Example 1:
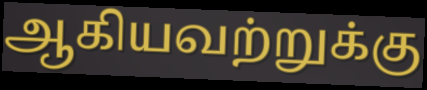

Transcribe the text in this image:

ஆகியவற்றுக்கு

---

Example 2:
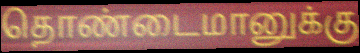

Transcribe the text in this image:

தொண்டைமானுக்கு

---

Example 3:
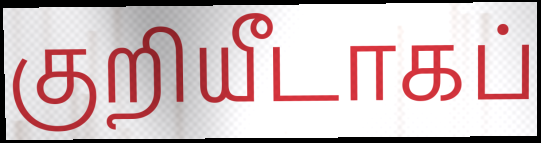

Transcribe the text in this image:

குறியீடாகப்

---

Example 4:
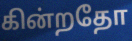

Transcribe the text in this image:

கின்றதோ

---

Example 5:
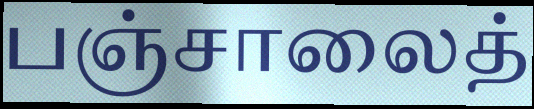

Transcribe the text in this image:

பஞ்சாலைத்